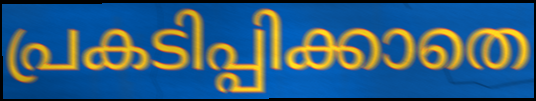
പ്രകടിപ്പിക്കാതെ